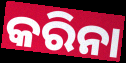
କରିନା